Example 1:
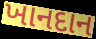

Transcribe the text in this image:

ખાનદાન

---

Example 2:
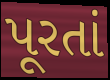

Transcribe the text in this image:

પૂરતાં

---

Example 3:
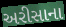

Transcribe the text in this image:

અરીસાના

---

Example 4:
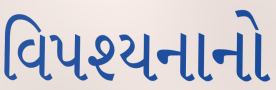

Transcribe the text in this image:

વિપશ્યનાનો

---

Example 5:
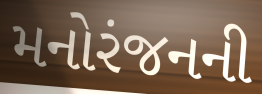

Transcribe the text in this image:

મનોરંજનની